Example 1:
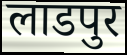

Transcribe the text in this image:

लाडपुर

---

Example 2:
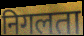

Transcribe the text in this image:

निगलता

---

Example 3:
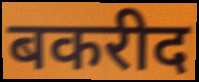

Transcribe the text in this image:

बकरीद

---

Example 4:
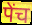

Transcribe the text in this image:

पेंच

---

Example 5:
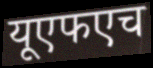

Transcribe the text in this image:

यूएफएच